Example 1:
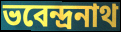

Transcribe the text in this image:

ভবেন্দ্ৰনাথ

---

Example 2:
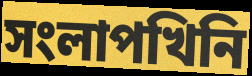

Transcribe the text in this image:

সংলাপখিনি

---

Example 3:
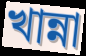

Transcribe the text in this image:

খান্না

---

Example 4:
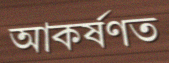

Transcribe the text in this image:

আকৰ্ষণত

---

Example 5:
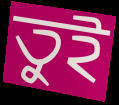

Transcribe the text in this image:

তুই